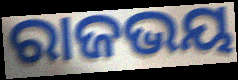
ରାଜଭୟ